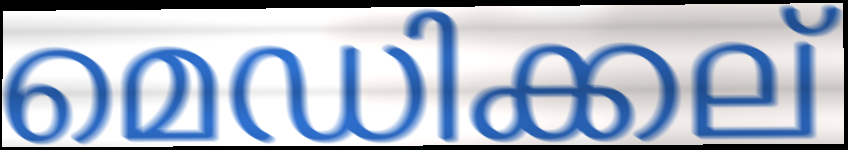
മെഡിക്കല്